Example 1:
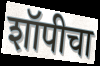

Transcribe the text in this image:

शॉपीचा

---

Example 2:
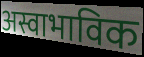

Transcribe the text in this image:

अस्वाभाविक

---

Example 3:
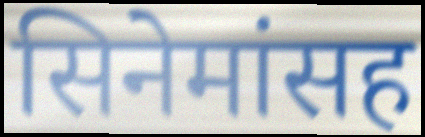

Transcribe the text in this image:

सिनेमांसह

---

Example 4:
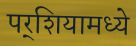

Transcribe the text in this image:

पर्शियामध्ये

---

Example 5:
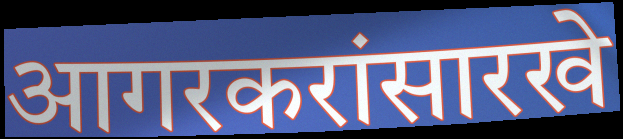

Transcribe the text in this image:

आगरकरांसारखे